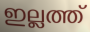
ഇല്ലത്ത്